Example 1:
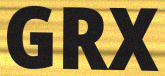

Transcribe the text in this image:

GRX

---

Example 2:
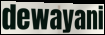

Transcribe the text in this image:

dewayani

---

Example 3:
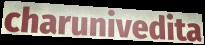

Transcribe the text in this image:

charunivedita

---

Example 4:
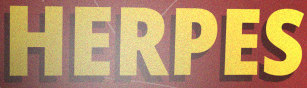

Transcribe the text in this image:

HERPES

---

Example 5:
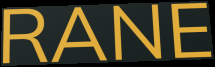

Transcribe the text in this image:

RANE